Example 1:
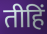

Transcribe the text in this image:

तीहिं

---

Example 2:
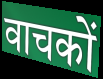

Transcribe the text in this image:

वाचकों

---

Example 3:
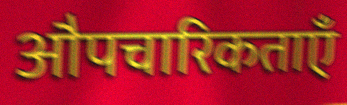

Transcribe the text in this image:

औपचारिकताएँ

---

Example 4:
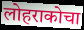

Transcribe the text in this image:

लोहराकोचा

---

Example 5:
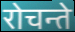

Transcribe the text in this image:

रोचन्ते